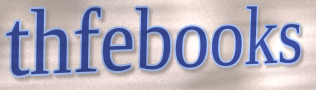
thfebooks